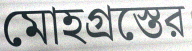
মোহগ্রস্তের